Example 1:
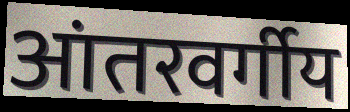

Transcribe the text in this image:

आंतरवर्गीय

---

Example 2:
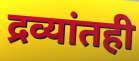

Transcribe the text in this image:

द्रव्यांतही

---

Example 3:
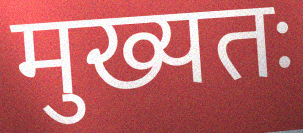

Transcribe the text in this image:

मुख्यतः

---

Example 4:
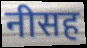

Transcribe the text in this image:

नीसह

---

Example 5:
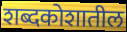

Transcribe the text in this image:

शब्दकोशातील